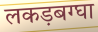
लकड़बग्घा